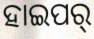
ହାଇପର୍